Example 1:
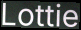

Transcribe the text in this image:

Lottie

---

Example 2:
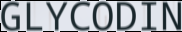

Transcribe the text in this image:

GLYCODIN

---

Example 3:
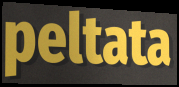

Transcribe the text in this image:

peltata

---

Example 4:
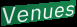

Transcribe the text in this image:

Venues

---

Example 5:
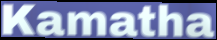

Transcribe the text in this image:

Kamatha